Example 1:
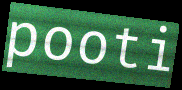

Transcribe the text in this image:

pooti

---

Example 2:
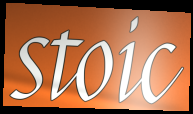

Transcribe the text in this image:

stoic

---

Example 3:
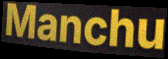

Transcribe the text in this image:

Manchu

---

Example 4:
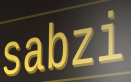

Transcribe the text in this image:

sabzi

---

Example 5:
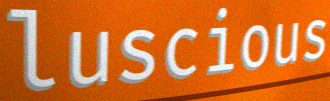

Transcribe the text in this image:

luscious